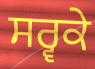
ਸਰ੍ਵਕੇ